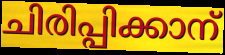
ചിരിപ്പിക്കാന്